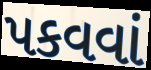
પકવવાં